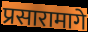
प्रसारामागे